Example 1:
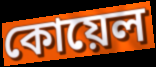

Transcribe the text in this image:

কোয়েল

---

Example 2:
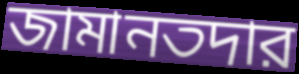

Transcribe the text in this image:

জামানতদার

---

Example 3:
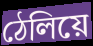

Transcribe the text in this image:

ঠেলিয়ে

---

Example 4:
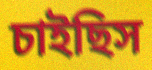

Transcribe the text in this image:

চাইছিস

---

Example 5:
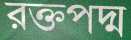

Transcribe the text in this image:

রক্তপদ্ম